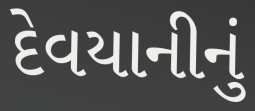
દેવયાનીનું